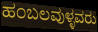
ಹಂಬಲವುಳ್ಳವರು